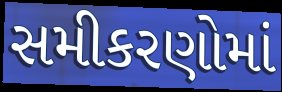
સમીકરણોમાં